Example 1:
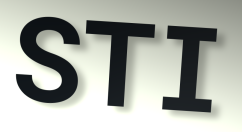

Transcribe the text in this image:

STI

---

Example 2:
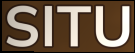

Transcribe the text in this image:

SITU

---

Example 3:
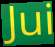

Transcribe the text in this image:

Jui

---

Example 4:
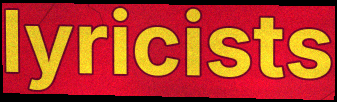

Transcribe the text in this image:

lyricists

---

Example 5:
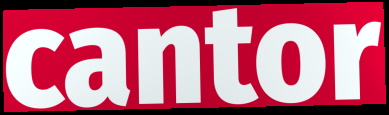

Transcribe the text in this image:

cantor